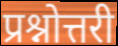
प्रश्नोत्तरी